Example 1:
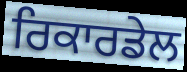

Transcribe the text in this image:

ਰਿਕਾਰਡੇਲ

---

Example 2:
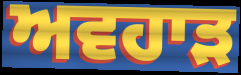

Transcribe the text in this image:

ਅਵਹਾੜ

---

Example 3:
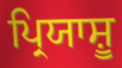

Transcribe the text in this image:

ਪ੍ਰਿਯਾਸ਼ੂ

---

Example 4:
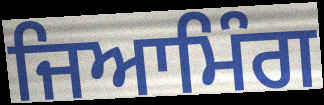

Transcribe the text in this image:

ਜਿਆਮਿੰਗ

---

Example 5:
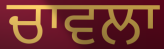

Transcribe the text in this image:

ਚਾਵਲਾ